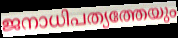
ജനാധിപത്യത്തേയും